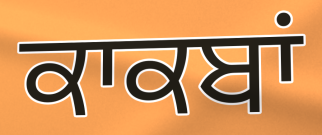
ਕਾਕਬਾਂ